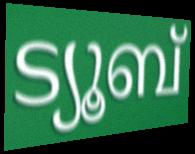
ട്യൂബ്